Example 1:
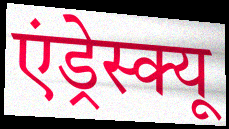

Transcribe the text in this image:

एंड्रेस्क्यू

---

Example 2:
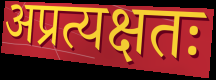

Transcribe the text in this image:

अप्रत्यक्षतः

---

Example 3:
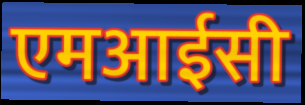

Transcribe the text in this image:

एमआईसी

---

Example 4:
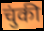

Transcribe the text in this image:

चुंकी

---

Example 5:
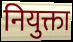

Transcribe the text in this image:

नियुक्ता